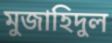
মুজাহিদুল